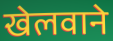
खेलवाने